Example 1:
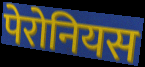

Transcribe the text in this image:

पेरोनियस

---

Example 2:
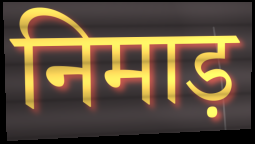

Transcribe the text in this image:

निमाड़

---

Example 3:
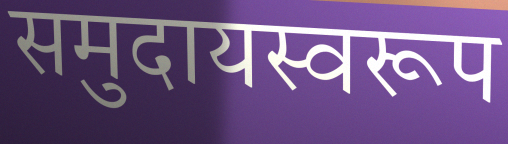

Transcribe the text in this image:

समुदायस्वरूप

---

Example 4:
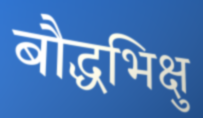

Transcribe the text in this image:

बौद्धभिक्षु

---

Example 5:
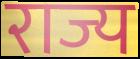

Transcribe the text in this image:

राज्‍य